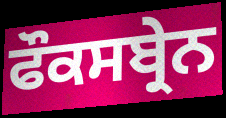
ਫੌਕਸਬ੍ਰੇਨ